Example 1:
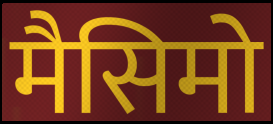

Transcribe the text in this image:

मैसिमो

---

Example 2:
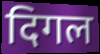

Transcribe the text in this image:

दिगल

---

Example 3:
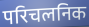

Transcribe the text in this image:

परिचलनिक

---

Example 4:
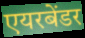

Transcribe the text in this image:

एयरबेंडर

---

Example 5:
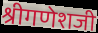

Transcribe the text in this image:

श्रीगणेशजी